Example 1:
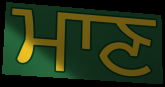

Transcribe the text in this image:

ਮਾਣ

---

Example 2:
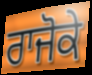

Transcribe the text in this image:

ਰਾਜੋਕੇ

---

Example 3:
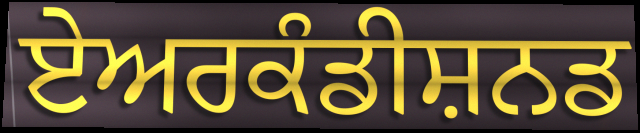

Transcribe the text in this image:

ਏਅਰਕੰਡੀਸ਼ਨਡ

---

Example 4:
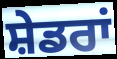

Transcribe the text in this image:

ਸ਼ੇਡਰਾਂ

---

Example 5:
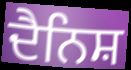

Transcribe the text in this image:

ਦੈਨਿਸ਼